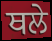
ਥਲੇ